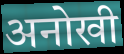
अनोखी